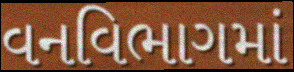
વનવિભાગમાં